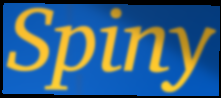
Spiny